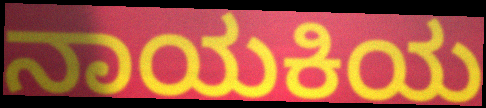
ನಾಯಕಿಯ